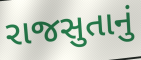
રાજસુતાનું